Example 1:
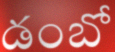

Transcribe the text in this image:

డంబో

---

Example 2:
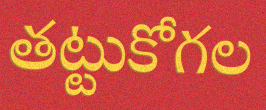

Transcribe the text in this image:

తట్టుకోగల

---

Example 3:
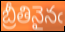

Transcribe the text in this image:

బ్రీతినైనఁ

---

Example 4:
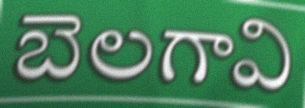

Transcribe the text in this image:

బెలగావి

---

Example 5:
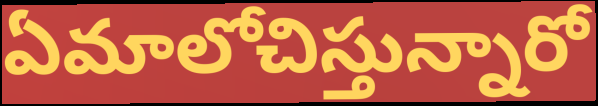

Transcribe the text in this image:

ఏమాలోచిస్తున్నారో